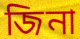
জিনা